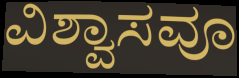
ವಿಶ್ವಾಸವೂ